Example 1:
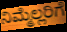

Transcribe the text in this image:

ನಿಮ್ಮೆಲ್ಲರಿಗೆ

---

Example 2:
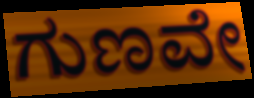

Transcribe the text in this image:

ಗುಣವೇ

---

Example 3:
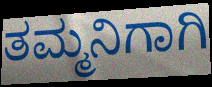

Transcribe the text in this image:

ತಮ್ಮನಿಗಾಗಿ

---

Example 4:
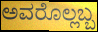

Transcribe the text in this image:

ಅವರೊಲ್ಲಬ್ಬ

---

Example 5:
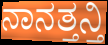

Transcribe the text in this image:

ನಾನತ್ತನ್ತಿ